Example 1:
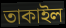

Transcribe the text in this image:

তাকাইল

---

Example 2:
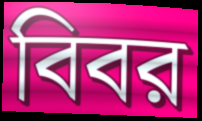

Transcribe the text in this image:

বিবর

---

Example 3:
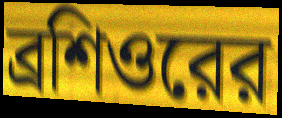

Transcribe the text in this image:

ব্রশিওরের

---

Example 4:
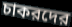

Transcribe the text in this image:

চাকরদের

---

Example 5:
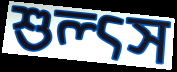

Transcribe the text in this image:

শুল্ৎস